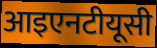
आइएनटीयूसी